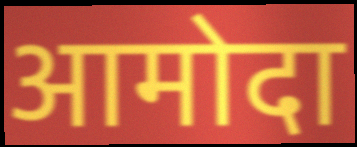
आमोदा